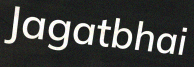
Jagatbhai